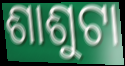
ଶାଶୁଟା